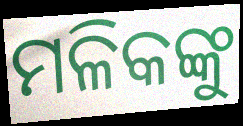
ମଳିକଙ୍କୁ